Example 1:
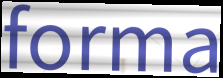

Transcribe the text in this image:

forma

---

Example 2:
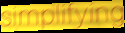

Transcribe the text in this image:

simplifying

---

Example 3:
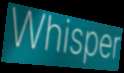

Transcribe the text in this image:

Whisper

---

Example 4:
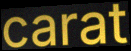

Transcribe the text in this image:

carat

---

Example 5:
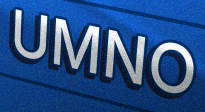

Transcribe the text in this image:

UMNO